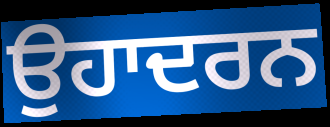
ਉਹਾਦਰਨ